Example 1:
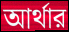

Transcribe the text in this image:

আর্থার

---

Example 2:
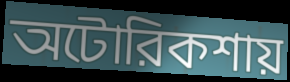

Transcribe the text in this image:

অটোরিকশায়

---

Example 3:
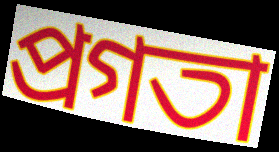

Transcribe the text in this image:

প্রগতা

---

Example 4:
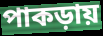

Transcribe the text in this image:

পাকড়ায়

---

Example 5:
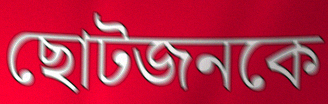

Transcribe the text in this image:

ছোটজনকে